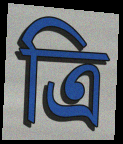
ত্ৰি